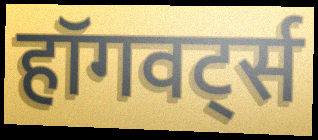
हॉगवर्ट्स